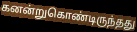
கனன்றுகொண்டிருந்தது